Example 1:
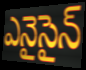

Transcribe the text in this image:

ఎనైసైన్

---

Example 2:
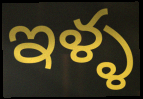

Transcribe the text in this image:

ఇళ్ళ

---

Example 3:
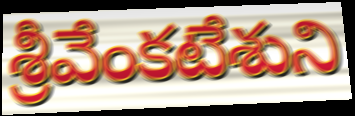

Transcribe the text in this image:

శ్రీవేంకటేశుని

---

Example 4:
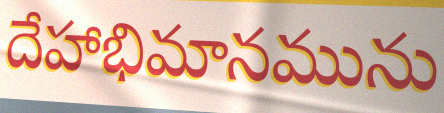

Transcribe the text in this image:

దేహాభిమానమును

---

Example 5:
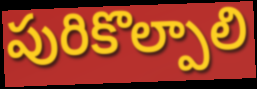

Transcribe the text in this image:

పురికొల్పాలి